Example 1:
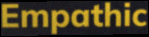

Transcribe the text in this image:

Empathic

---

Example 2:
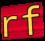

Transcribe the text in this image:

rf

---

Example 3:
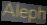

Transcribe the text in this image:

Aleph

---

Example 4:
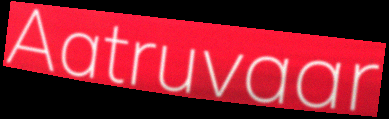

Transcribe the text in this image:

Aatruvaar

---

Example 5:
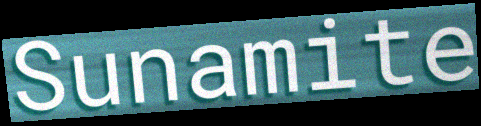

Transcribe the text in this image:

Sunamite